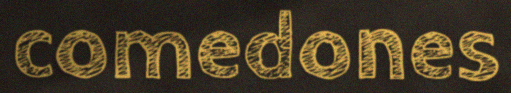
comedones